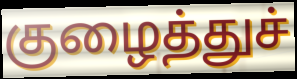
குழைத்துச்